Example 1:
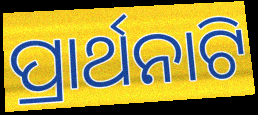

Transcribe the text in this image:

ପ୍ରାର୍ଥନାଟି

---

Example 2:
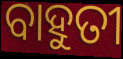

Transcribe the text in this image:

ବାହୁତୀ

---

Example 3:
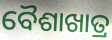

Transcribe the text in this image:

ବୈଶାଖାତ୍ର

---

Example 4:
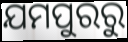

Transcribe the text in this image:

ଯମପୁରରୁ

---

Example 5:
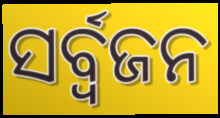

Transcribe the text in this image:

ସର୍ବ୍ବଜନ